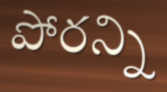
పోరన్ని